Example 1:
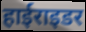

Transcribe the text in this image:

हाईराइडर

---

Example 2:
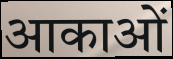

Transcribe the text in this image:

आकाओं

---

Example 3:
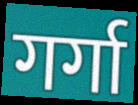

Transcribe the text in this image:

गर्गा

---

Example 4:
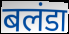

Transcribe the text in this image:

बलंडा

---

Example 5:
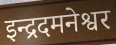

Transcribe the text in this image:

इन्द्रदमनेश्वर